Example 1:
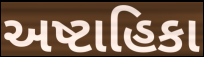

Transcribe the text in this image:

અષ્ટાહિકા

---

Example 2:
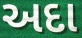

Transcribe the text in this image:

અદા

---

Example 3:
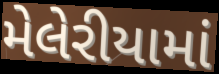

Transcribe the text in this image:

મેલેરીયામાં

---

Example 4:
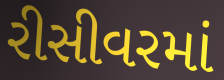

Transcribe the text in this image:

રીસીવરમાં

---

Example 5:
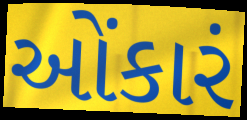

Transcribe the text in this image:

ઓંકારં